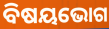
ବିଷୟଭୋଗ